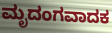
ಮೃದಂಗವಾದಕ